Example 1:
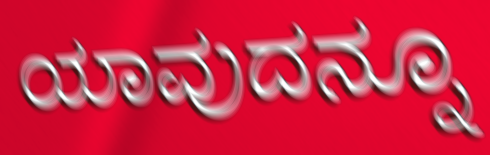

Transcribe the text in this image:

ಯಾವುದನ್ನೂ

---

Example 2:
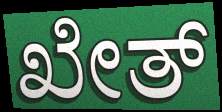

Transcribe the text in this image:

ಖೇತ್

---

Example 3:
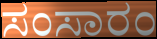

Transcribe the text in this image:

ಸಂಸಾರಂ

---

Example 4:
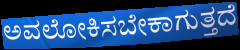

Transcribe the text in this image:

ಅವಲೋಕಿಸಬೇಕಾಗುತ್ತದೆ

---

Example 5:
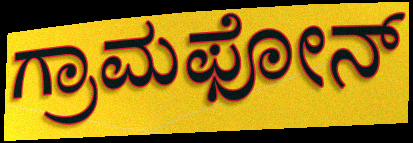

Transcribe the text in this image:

ಗ್ರಾಮಫೋನ್